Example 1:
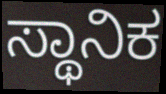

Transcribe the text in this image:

ಸ್ಥಾನಿಕ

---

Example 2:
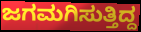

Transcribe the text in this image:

ಜಗಮಗಿಸುತ್ತಿದ್ದ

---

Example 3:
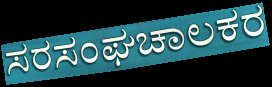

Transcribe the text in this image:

ಸರಸಂಘಚಾಲಕರ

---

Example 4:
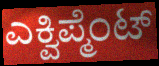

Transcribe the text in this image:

ಎಕ್ವಿಪ್ಮೆಂಟ್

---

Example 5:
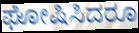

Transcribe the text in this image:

ಘೋಷಿಸಿದರೂ